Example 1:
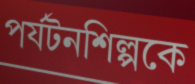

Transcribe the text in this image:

পর্যটনশিল্পকে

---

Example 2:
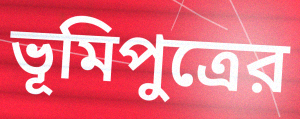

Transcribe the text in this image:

ভূমিপুত্রের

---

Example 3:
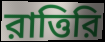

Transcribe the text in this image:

রাত্তিরি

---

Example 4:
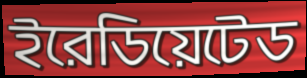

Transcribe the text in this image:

ইরেডিয়েটেড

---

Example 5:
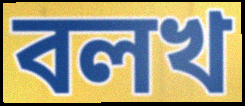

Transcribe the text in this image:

বলখ